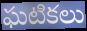
ఘటికలు